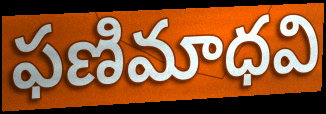
ఫణిమాధవి